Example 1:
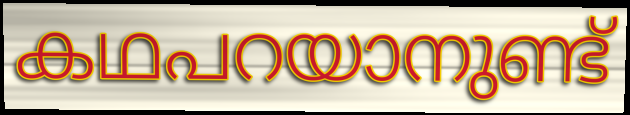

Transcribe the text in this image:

കഥപറയാനുണ്ട്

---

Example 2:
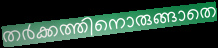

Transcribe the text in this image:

തർക്കത്തിനൊരുങ്ങാതെ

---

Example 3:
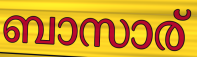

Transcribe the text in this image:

ബാസാര്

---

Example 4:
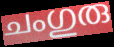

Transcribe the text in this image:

ചംഗുരു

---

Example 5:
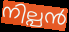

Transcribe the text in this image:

നില്പൻ